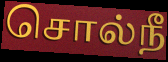
சொல்நீ